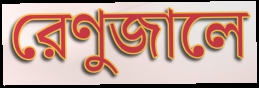
রেণুজালে